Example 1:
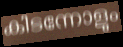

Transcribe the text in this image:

കിടന്നോളും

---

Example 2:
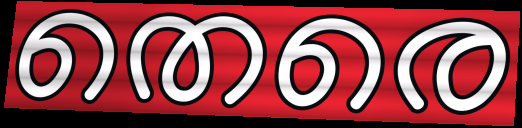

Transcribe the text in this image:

തെരെ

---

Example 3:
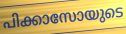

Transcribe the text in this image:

പിക്കാസോയുടെ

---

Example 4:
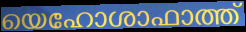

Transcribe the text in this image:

യെഹോശാഫാത്ത്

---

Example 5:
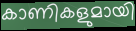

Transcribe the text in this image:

കാണികളുമായി